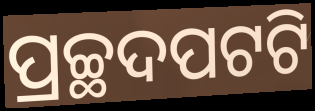
ପ୍ରଚ୍ଛଦପଟଟି